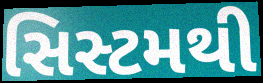
સિસ્ટમથી